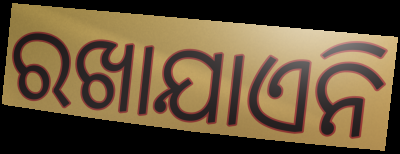
ରଖାଯାଏନି